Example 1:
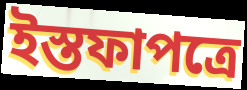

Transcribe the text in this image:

ইস্তফাপত্রে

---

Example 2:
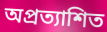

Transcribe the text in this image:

অপ্রত্যাশিত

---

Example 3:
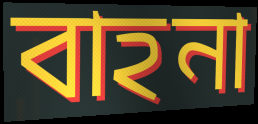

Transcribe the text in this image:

বাহনা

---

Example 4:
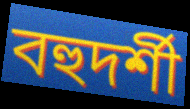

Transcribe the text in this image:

বহুদর্শী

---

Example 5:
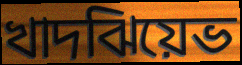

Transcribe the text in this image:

খাদঝিয়েভ